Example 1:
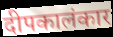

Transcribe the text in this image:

दीपकालंकार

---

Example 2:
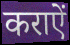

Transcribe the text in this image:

कराऐं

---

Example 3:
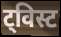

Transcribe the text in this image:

ट्विस्ट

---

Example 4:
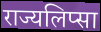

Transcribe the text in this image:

राज्यलिप्सा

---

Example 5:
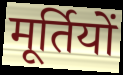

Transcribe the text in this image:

मूर्तियों